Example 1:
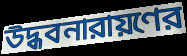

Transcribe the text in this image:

উদ্ধবনারায়ণের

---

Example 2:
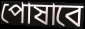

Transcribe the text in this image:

পোষাবে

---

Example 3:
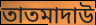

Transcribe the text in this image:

তাতমাদাউ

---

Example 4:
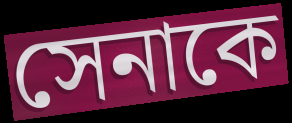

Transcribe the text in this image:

সেনাকে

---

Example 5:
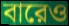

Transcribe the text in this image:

বারেও